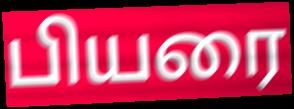
பியரை